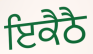
ਇਕੈਠੈ